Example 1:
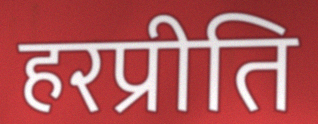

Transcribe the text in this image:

हरप्रीति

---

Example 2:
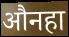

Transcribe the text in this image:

औनहा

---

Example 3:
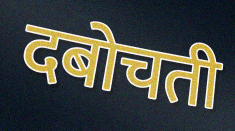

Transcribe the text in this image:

दबोचती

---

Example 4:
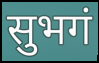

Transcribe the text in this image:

सुभगं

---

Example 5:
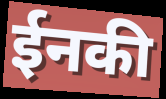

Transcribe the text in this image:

ईनकी